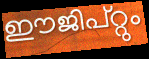
ഈജിപ്റ്റും